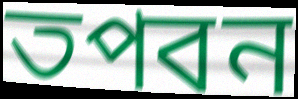
তপবন